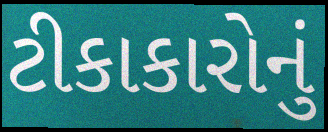
ટીકાકારોનું